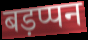
बड़प्पन